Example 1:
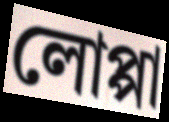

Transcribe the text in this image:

লোপ্পা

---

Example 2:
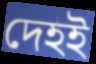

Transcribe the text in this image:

দেহই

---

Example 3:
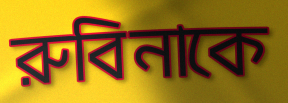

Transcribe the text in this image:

রুবিনাকে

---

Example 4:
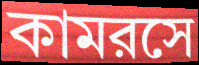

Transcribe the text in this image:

কামরসে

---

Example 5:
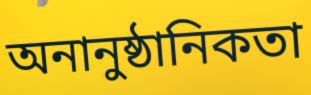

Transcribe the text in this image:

অনানুষ্ঠানিকতা